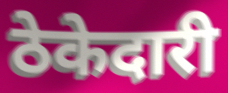
ठेकेदारी